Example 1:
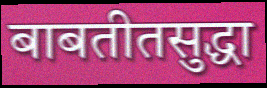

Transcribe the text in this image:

बाबतीतसुद्धा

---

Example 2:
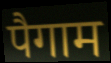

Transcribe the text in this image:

पैगाम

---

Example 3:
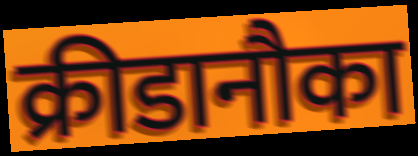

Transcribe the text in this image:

क्रीडानौका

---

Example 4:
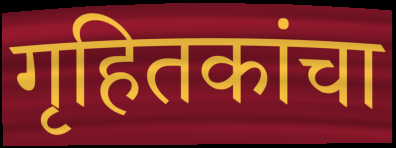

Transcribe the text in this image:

गृहितकांचा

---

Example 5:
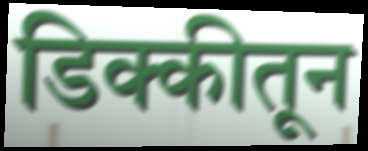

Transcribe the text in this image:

डिक्कीतून